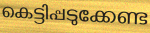
കെട്ടിപ്പടുക്കേണ്ട